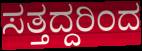
ಸತ್ತದ್ದರಿಂದ